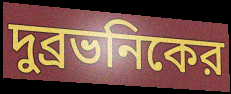
দুব্রভনিকের